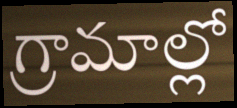
గ్రామాల్లో